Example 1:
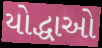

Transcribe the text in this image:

યોદ્ધાઓ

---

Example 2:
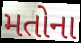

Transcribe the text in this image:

મતોના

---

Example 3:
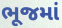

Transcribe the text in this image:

ભૂજમાં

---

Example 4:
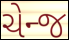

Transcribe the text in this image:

ચેન્જ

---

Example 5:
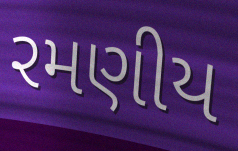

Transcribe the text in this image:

રમણીય